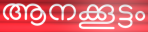
ആനക്കൂട്ടം